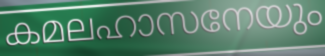
കമലഹാസനേയും